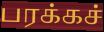
பரக்கச்